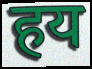
हय